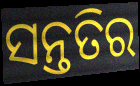
ସନ୍ତତିର